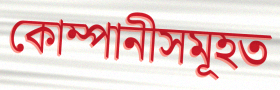
কোম্পানীসমূহত